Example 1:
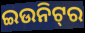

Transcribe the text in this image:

ଇଉନିଟ୍‍ର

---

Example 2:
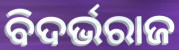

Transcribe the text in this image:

ବିଦର୍ଭରାଜ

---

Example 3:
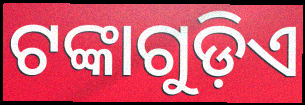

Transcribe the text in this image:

ଟଙ୍କାଗୁଡ଼ିଏ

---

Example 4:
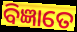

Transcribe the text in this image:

ବିଜ୍ଞାତେ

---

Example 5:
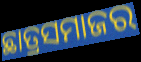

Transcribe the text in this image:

ଛାତ୍ରସମାଜର